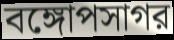
বঙ্গোপসাগর